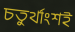
চতুর্থাংশই